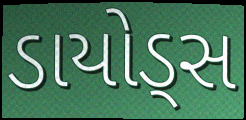
ડાયોડ્સ